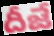
దీజే